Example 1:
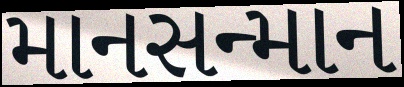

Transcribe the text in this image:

માનસન્માન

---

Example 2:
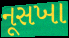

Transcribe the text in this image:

નૂસખા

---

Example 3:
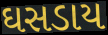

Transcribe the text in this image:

ઘસડાય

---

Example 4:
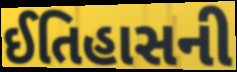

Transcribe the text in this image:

ઈતિહાસની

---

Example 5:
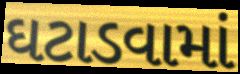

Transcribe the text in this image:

ઘટાડવામાં